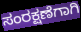
ಸಂರಕ್ಷಣೆಗಾಗಿ